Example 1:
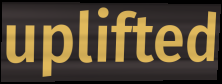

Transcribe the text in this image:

uplifted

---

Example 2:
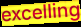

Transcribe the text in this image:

excelling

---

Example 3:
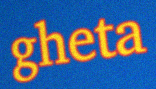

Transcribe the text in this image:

gheta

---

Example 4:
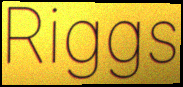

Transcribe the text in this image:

Riggs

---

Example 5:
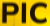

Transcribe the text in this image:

PIC